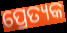
ପ୍ରେତ୍ୟକ